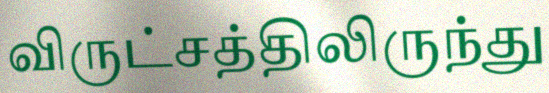
விருட்சத்திலிருந்து